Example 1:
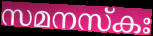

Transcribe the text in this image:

സമനസ്കഃ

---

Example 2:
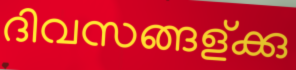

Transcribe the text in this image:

ദിവസങ്ങള്ക്കു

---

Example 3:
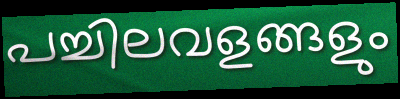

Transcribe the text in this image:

പച്ചിലവളങ്ങളും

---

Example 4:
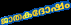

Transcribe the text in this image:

ജാതകദോഷം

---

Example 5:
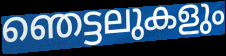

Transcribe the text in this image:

ഞെട്ടലുകളും